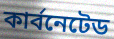
কার্বনেটেড